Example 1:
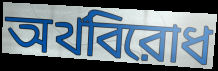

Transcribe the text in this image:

অর্থবিরোধ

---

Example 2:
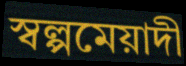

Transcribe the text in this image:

স্বল্পমেয়াদী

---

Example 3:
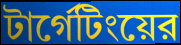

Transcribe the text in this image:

টার্গেটিংয়ের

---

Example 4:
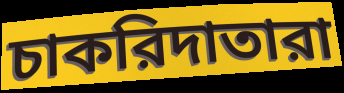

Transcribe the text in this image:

চাকরিদাতারা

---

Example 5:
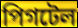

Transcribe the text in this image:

পিগটেল